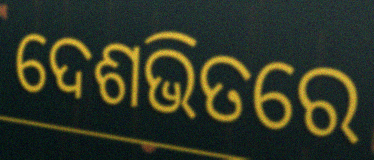
ଦେଶଭିତରେ